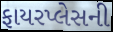
ફાયરપ્લેસની